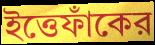
ইত্তেফাঁকের